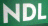
NDL